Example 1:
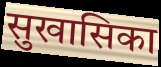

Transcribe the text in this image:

सुखासिका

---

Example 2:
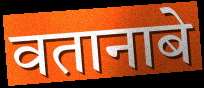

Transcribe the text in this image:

वतानाबे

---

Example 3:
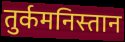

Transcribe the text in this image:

तुर्कमनिस्तान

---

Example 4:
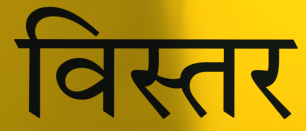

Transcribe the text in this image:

विस्तर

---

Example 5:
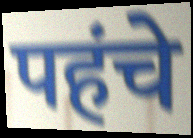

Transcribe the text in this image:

पहंचे